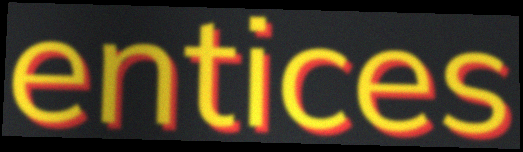
entices